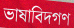
ভাষাবিদগণ